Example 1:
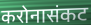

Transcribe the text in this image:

करोनासंकट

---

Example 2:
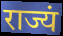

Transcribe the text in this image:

राज्यं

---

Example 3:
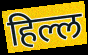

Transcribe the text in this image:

हिल्ल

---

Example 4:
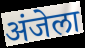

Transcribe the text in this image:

अंजेला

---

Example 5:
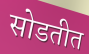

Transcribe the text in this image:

सोडतीत